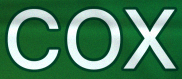
COX